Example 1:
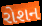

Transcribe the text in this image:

રોશન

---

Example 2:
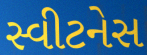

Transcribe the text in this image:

સ્વીટનેસ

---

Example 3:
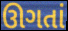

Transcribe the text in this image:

ઊગતાં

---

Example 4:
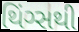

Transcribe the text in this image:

થિંગ્સથી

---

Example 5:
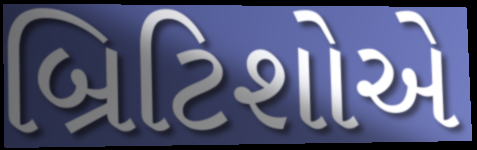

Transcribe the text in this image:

બ્રિટિશોએ